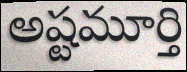
అష్టమూర్తి